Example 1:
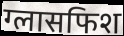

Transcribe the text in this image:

ग्लासफिश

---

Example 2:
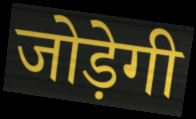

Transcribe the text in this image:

जोड़ेगी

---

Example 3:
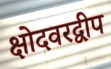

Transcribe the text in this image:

क्षोदवरद्वीप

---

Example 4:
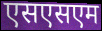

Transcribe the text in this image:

एसएसएम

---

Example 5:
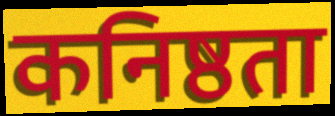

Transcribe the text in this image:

कनिष्ठता